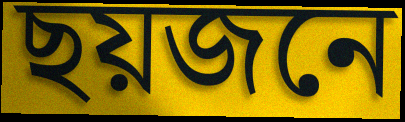
ছয়জনে